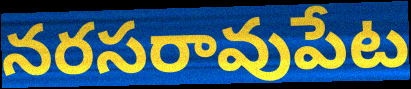
నరసరావుపేట